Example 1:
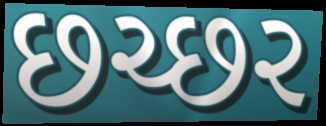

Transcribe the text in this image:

છચ્છર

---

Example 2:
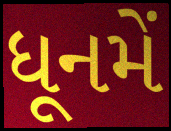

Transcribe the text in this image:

ધૂનમેં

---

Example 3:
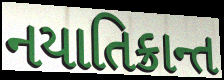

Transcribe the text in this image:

નયાતિક્રાન્ત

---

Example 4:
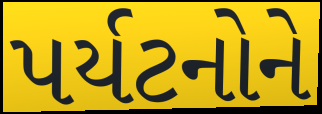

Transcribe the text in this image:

પર્યટનોને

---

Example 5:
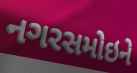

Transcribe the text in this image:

નગરસમોઇને